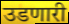
उडणारी